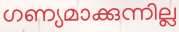
ഗണ്യമാക്കുന്നില്ല